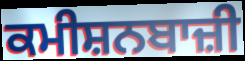
ਕਮੀਸ਼ਨਬਾਜ਼ੀ